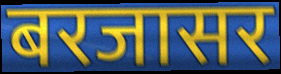
बरजासर